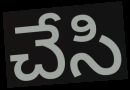
చేసి